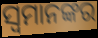
ସ୍ୱମାନଙ୍କର